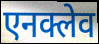
एनक्लेव